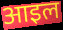
आइल